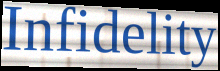
Infidelity